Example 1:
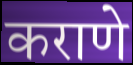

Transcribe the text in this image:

कराणे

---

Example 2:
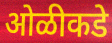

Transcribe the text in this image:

ओळीकडे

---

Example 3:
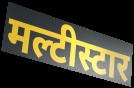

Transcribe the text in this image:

मल्टीस्टार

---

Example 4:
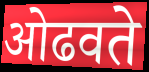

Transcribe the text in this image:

ओढवते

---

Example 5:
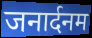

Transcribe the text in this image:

जनार्दनम